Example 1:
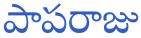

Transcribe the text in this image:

పాపరాజు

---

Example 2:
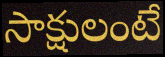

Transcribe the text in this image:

సాక్షులంటే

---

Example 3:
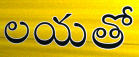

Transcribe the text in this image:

లయతో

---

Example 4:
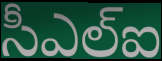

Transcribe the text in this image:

సీఎల్ఐ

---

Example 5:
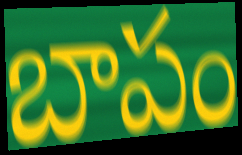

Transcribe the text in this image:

బాపం